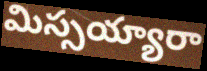
మిస్సయ్యారా